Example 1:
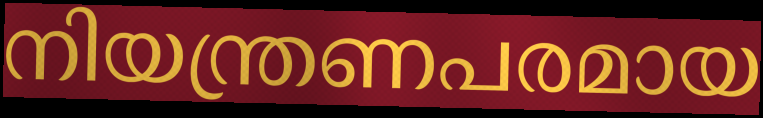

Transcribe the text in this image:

നിയന്ത്രണപരമായ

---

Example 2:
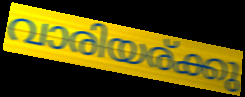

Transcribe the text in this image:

വാരിയര്ക്കു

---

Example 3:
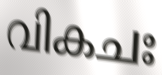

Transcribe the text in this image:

വികചഃ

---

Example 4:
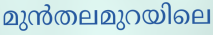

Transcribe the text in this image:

മുൻതലമുറയിലെ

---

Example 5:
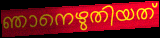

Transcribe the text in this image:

ഞാനെഴുതിയത്